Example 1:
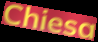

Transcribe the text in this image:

Chiesa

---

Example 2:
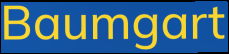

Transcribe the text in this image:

Baumgart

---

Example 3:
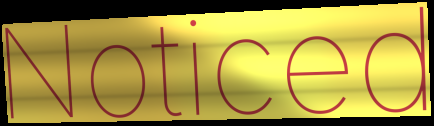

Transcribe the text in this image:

Noticed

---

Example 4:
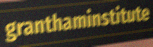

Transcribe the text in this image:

granthaminstitute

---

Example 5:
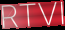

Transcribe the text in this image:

RTVI